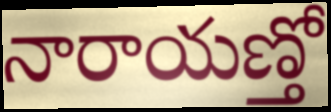
నారాయణ్తో